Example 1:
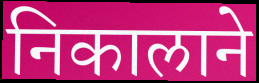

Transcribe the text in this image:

निकालाने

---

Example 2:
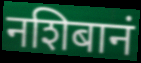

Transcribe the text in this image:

नशिबानं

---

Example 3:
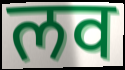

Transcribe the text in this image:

लव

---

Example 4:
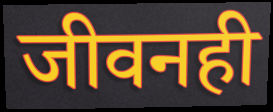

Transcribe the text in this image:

जीवनही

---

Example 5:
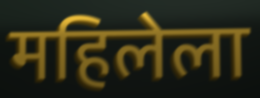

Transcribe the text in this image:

महिलेला